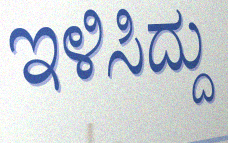
ಇಳಿಸಿದ್ದು